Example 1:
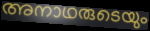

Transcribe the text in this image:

അനാഥരുടെയും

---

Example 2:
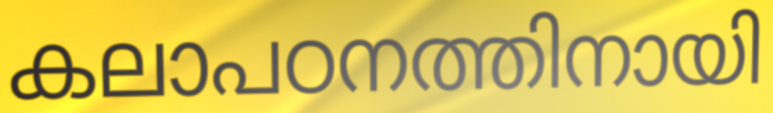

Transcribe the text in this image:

കലാപഠനത്തിനായി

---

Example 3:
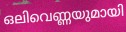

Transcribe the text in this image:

ഒലിവെണ്ണയുമായി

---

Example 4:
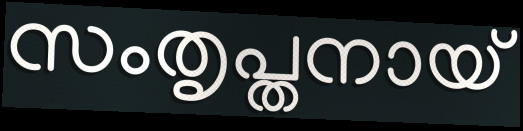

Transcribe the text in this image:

സംതൃപ്തനായ്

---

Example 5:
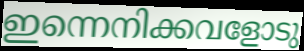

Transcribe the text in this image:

ഇന്നെനിക്കവളോടു